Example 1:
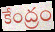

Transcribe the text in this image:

కేంద్రం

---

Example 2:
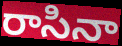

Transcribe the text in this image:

రాసినా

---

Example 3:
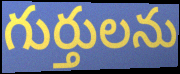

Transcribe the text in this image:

గుర్తులను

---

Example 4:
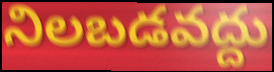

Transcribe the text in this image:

నిలబడవద్దు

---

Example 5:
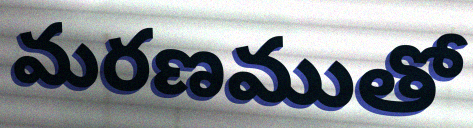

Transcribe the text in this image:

మరణముతో